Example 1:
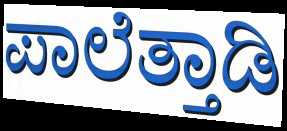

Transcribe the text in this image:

ಪಾಲೆತ್ತಾಡಿ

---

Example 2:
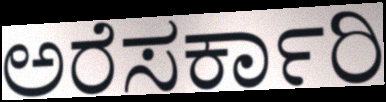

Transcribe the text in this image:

ಅರೆಸರ್ಕಾರಿ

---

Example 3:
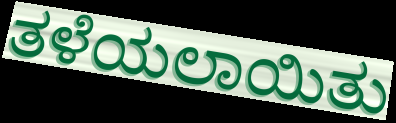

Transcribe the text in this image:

ತಳೆಯಲಾಯಿತು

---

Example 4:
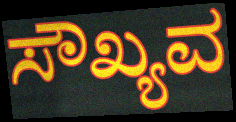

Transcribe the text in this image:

ಸೌಖ್ಯವ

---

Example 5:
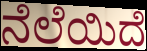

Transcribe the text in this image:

ನೆಲೆಯಿದೆ